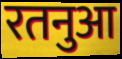
रतनुआ